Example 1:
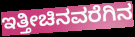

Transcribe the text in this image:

ಇತ್ತೀಚಿನವರೆಗಿನ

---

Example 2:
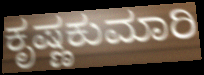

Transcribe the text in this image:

ಕೃಷ್ಣಕುಮಾರಿ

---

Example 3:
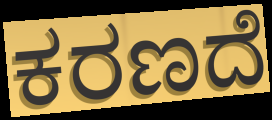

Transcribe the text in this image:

ಕರಣದೆ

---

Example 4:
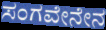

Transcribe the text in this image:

ಸಂಗವೇನೇನ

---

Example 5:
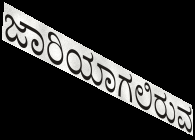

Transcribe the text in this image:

ಜಾರಿಯಾಗಲಿರುವ